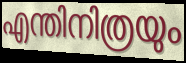
എന്തിനിത്രയും